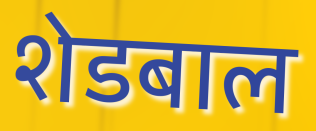
शेडबाल